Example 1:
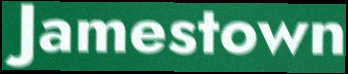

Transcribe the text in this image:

Jamestown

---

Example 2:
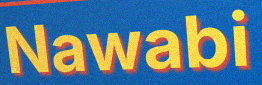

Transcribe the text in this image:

Nawabi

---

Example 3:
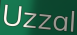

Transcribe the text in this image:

Uzzal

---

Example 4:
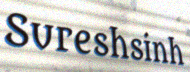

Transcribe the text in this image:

Sureshsinh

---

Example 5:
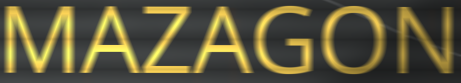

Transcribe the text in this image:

MAZAGON